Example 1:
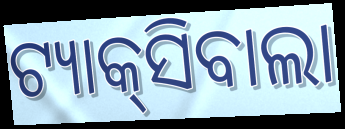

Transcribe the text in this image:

ଟ୍ୟାକ୍‌ସିବାଲା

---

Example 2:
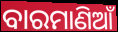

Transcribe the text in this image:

ବାରମାଣିଆଁ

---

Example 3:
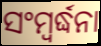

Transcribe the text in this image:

ସଂମ୍ବର୍ଦ୍ଧନା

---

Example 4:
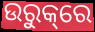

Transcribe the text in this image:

ଉରୁକ୍‌ରେ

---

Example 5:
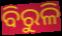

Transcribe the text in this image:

ବିରୁଳି